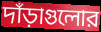
দাঁড়াগুলোর